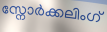
സ്നോർക്കലിംഗ്